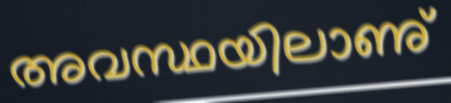
അവസ്ഥയിലാണു്